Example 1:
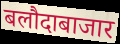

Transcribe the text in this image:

बलौदाबाजार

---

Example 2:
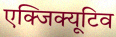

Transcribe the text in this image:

एक्जिक्यूटिव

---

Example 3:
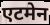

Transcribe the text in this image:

एटमेन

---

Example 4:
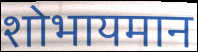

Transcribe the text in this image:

शोभायमान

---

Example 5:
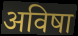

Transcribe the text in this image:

अविषा